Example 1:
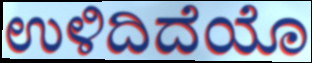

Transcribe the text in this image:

ಉಳಿದಿದೆಯೊ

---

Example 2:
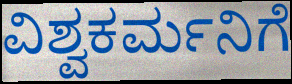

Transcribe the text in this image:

ವಿಶ್ವಕರ್ಮನಿಗೆ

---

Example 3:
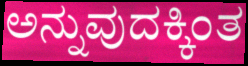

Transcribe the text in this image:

ಅನ್ನುವುದಕ್ಕಿಂತ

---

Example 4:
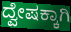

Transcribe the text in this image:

ದ್ವೇಷಕ್ಕಾಗಿ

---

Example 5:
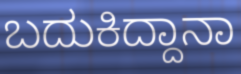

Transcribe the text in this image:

ಬದುಕಿದ್ದಾನಾ